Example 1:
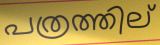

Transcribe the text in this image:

പത്രത്തില്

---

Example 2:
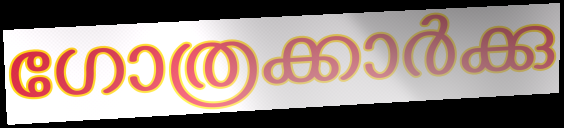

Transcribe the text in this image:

ഗോത്രക്കാർക്കു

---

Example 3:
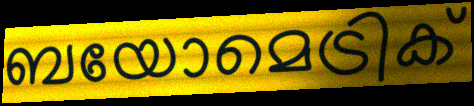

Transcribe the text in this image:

ബയോമെട്രിക്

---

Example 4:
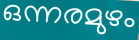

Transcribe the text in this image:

ഒന്നരമുഴം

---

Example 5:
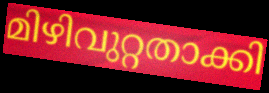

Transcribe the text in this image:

മിഴിവുറ്റതാക്കി